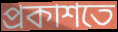
প্রকাশতে